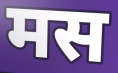
मस